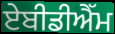
ਏਬੀਡੀਐੱਮ